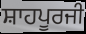
ਸ਼ਾਹਪੂਰਜੀ